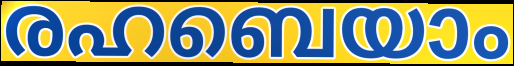
രഹബെയാം